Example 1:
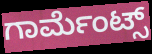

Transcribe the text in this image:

ಗಾರ್ಮೆಂಟ್ಸ್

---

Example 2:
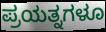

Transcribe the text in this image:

ಪ್ರಯತ್ನಗಳೂ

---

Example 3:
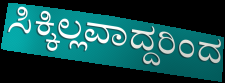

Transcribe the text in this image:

ಸಿಕ್ಕಿಲ್ಲವಾದ್ದರಿಂದ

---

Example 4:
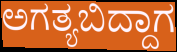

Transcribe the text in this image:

ಅಗತ್ಯಬಿದ್ದಾಗ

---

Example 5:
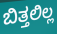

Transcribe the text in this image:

ಬಿತ್ತಲಿಲ್ಲ